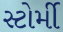
સ્ટોર્મી